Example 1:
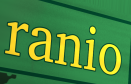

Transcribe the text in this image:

ranio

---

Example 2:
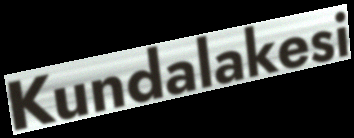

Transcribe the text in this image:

Kundalakesi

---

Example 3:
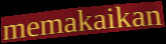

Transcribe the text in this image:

memakaikan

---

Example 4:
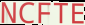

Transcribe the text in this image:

NCFTE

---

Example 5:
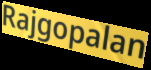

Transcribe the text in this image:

Rajgopalan